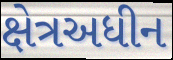
ક્ષેત્રઅધીન